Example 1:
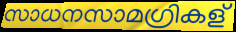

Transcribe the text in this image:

സാധനസാമഗ്രികള്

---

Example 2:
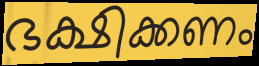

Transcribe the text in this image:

ഭക്ഷിക്കണം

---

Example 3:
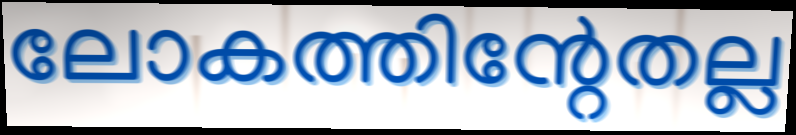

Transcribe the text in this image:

ലോകത്തിന്റേതല്ല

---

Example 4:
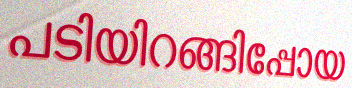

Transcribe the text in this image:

പടിയിറങ്ങിപ്പോയ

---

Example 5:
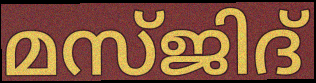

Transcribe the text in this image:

മസ്ജിദ്